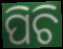
ପିଚି